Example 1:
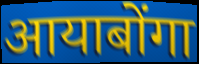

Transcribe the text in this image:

आयाबोंगा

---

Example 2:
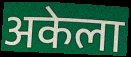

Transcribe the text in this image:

अकेला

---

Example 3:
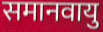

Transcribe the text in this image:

समानवायु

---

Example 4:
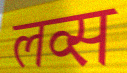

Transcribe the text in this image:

लव्स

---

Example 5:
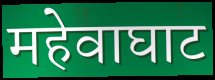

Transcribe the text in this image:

महेवाघाट